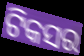
ଟିକସର